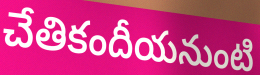
చేతికందీయనుంటి